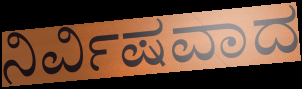
ನಿರ್ವಿಷವಾದ